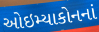
ઓઇમ્યાકોનનાં